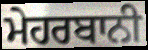
ਮੇਹਰਬਾਨੀ